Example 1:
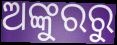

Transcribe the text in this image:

ଅଙ୍କୁରରୁ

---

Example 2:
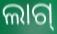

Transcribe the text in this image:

ଲାଗ୍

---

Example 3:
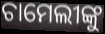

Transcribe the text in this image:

ଚାମେଲୀଙ୍କୁ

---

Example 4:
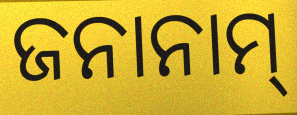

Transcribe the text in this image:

ଜନାନାମ୍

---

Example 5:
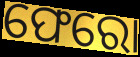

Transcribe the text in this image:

ଫେରୋ